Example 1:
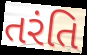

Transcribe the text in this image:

તરંતિ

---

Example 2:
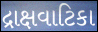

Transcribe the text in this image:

દ્રાક્ષવાટિકા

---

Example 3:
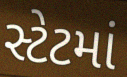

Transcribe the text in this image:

સ્ટેટમાં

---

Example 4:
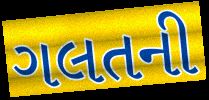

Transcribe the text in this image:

ગલતની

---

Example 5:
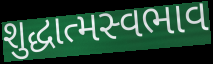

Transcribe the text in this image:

શુદ્ધાત્મસ્વભાવ